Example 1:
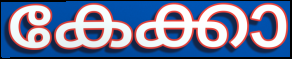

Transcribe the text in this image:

കേക്കാ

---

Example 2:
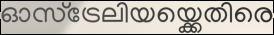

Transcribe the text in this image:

ഓസ്ട്രേലിയയ്ക്കെതിരെ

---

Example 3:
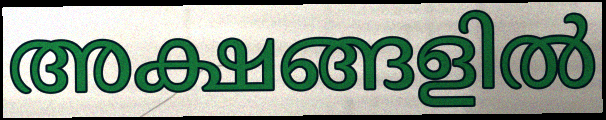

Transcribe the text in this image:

അക്ഷങ്ങളിൽ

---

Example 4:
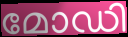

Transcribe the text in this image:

മോഡി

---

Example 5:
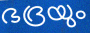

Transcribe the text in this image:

ഭദ്രയും